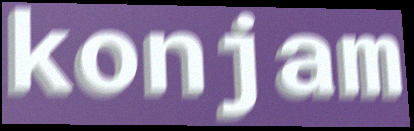
konjam